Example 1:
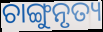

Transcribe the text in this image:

ଚାଙ୍ଗୁନୃତ୍ୟ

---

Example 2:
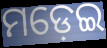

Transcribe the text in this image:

ମଡ଼େଇ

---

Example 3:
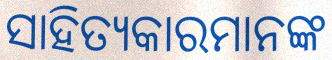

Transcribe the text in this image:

ସାହିତ୍ୟକାରମାନଙ୍କ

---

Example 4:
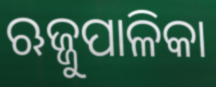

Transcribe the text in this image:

ଋଜ୍ଜୁପାଳିକା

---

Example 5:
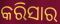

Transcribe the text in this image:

କରିସାର